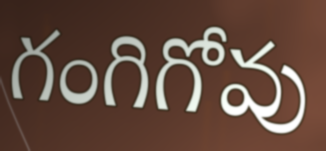
గంగిగోవు